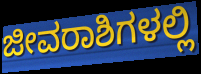
ಜೀವರಾಶಿಗಳಲ್ಲಿ